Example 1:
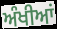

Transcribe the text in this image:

ਅੰਖੀਆਂ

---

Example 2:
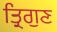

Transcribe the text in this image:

ਤ੍ਰਿਗੁਣ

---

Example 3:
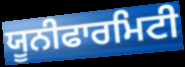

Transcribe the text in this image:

ਯੂਨੀਫਾਰਮਿਟੀ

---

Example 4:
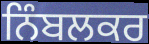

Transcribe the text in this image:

ਨਿੰਬਲਕਰ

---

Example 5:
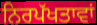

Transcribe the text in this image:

ਨਿਰਪੱਖਤਾਵਾਂ